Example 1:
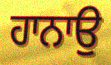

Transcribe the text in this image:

ਹਾਨਾਉ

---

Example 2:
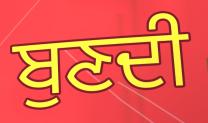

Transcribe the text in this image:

ਬੁਣਦੀ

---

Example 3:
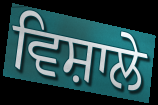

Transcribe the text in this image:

ਵਿਸ਼ਾਲੇ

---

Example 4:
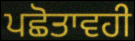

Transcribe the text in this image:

ਪਛੋਤਾਵਹੀ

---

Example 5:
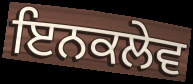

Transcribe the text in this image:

ਇਨਕਲੇਵ